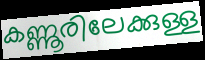
കണ്ണൂരിലേക്കുള്ള